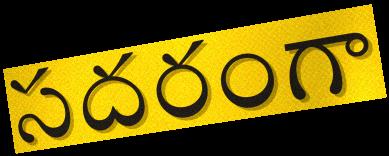
సదరంగా